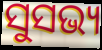
ସୁସଭ୍ୟ